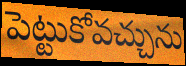
పెట్టుకోవచ్చును